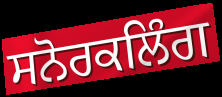
ਸਨੋਰਕਲਿੰਗ